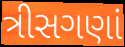
ત્રીસગણાં